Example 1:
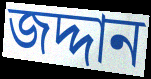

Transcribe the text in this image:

জদ্দান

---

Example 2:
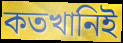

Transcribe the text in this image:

কতখানিই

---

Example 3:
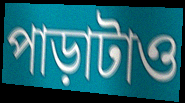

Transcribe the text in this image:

পাড়াটাও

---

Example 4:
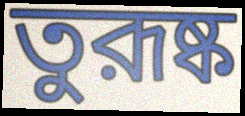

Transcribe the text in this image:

তুরূষ্ক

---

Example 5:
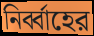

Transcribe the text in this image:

নির্ব্বাহের